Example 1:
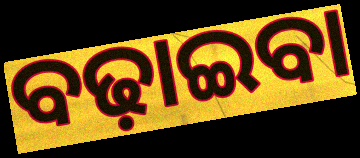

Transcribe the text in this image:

ବଢ଼ାଇବା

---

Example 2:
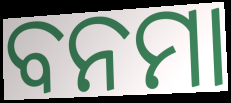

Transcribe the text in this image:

ବନମା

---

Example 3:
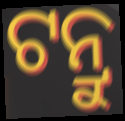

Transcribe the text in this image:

ଟନ୍ରୁ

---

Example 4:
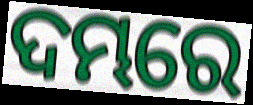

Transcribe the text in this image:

ଦମ୍ଭରେ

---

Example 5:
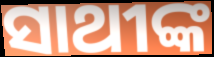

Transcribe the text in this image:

ସାଥୀଙ୍କ